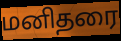
மனிதரை